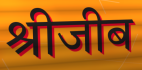
श्रीजीब